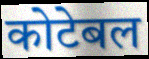
कोटेबल